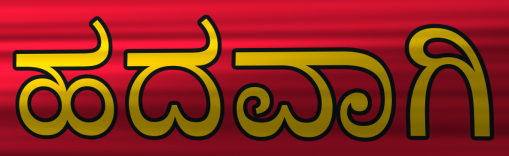
ಹದವಾಗಿ